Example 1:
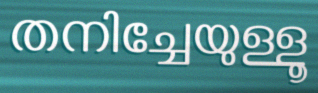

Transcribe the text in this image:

തനിച്ചേയുള്ളൂ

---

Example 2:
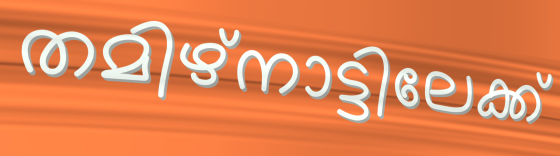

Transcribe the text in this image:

തമിഴ്നാട്ടിലേക്ക്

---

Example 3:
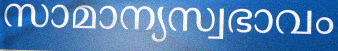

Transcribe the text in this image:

സാമാന്യസ്വഭാവം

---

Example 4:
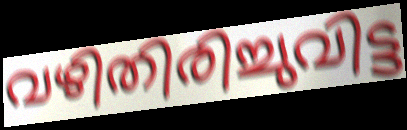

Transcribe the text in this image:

വഴിതിരിച്ചുവിട്ട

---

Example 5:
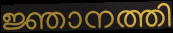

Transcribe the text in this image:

ജ്ഞാനത്തി